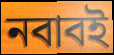
নবাবই